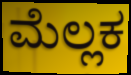
ಮೆಲ್ಲಕ